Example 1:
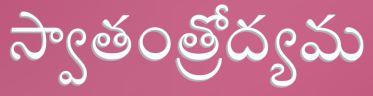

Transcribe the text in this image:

స్వాతంత్రోద్యమ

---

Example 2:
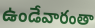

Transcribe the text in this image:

ఉండేవారంతా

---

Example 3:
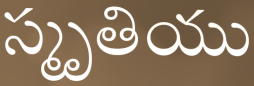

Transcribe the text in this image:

స్మృతియు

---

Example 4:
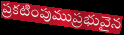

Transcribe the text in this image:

ప్రకటింపుముప్రభువైన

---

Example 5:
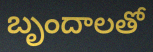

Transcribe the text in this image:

బృందాలతో